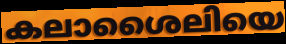
കലാശൈലിയെ